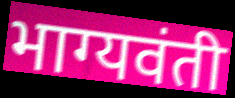
भाग्यवंती